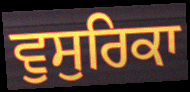
ਵੁਸੁਰਿਕਾ